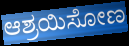
ಆಶ್ರಯಿಸೋಣ